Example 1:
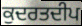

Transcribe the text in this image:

ਕੁਦਰਤਦੀਪ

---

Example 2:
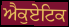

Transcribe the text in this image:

ਐਕੁਏਟਿਕ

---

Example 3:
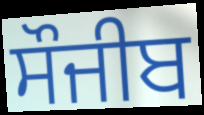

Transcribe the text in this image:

ਸੌਜੀਬ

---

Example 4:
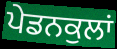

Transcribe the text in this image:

ਪੇਡਨਕੁਲਾਂ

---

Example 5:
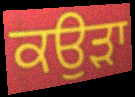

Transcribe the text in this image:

ਕਉੜਾ